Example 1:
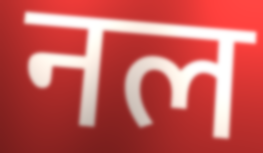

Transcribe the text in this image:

नल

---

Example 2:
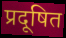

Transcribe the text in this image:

प्रदूषित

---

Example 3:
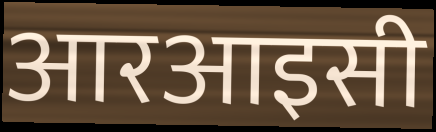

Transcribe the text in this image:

आरआइसी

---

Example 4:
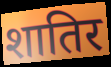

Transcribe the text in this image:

शातिर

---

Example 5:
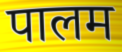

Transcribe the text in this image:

पालम